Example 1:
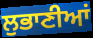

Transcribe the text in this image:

ਲੁਭਾਣੀਆਂ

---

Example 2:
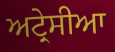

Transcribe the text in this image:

ਅਟ੍ਰੇਸੀਆ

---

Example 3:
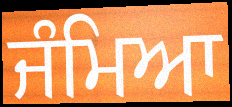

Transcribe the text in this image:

ਜੰਮਿਆ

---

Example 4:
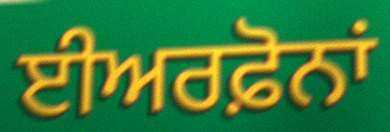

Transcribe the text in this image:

ਈਅਰਫ਼ੋਨਾਂ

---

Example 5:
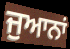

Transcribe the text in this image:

ਜੁਆਨਾਂ